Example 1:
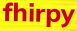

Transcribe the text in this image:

fhirpy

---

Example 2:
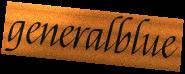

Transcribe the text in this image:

generalblue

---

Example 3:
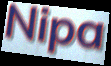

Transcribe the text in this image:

Nipa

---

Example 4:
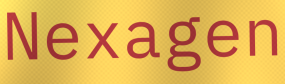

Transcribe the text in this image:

Nexagen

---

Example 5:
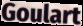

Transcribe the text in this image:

Goulart